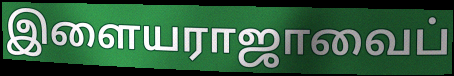
இளையராஜாவைப்